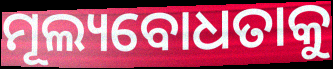
ମୂଲ୍ୟବୋଧତାକୁ